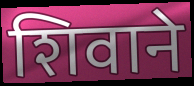
शिवाने